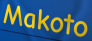
Makoto